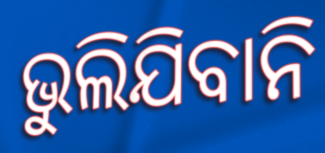
ଭୁଲିଯିବାନି